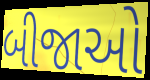
બીજાઓ